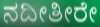
ನದೀತೀರೇ